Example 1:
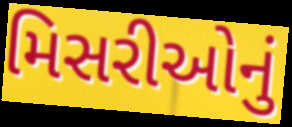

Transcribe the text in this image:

મિસરીઓનું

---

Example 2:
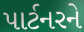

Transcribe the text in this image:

પાર્ટનરને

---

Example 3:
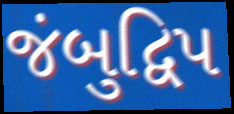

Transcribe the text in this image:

જંબુદ્વિપ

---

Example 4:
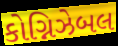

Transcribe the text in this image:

કોગ્નિઝેબલ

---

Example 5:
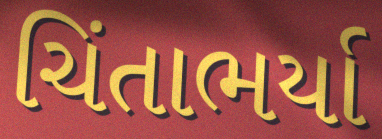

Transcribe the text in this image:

ચિંતાભર્યા